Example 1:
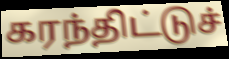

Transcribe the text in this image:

கரந்திட்டுச்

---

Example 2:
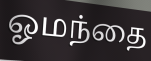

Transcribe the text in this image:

ஓமந்தை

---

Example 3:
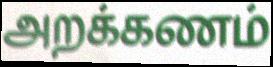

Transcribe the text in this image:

அறக்கணம்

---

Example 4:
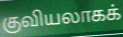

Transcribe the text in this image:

குவியலாகக்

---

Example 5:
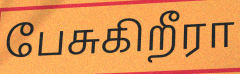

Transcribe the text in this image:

பேசுகிறீரா